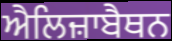
ਐਲਿਜ਼ਾਬੈਥਨ